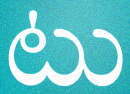
టు